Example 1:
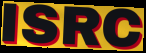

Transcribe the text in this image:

ISRC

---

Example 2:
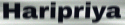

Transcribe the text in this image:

Haripriya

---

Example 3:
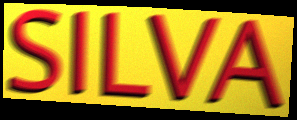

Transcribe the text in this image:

SILVA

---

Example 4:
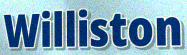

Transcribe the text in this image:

Williston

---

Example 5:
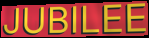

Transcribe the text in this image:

JUBILEE